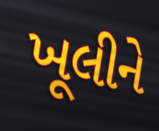
ખૂલીને